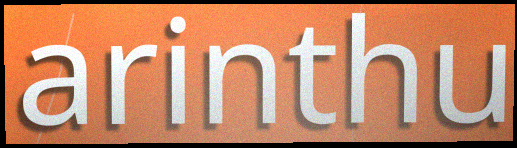
arinthu